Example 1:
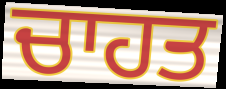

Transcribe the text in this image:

ਚਾਹਤ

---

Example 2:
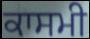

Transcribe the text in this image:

ਕਾਸਮੀ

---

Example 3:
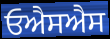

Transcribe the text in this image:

ਓਐਸਐਸ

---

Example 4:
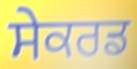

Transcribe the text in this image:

ਸੇਕਰਡ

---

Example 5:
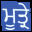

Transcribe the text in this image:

ਮੂਤ੍ਰੇ